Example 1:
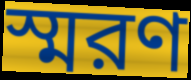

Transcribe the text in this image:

স্মরণ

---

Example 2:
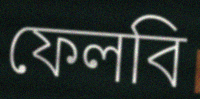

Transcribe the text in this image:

ফেলবি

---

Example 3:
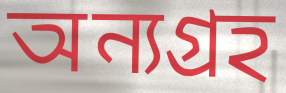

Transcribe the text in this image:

অন্যগ্রহ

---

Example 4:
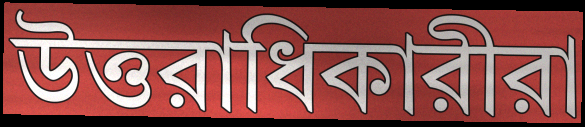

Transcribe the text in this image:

উত্তরাধিকারীরা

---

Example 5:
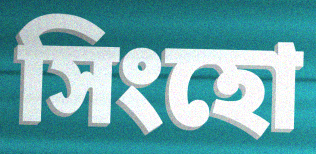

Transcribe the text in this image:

সিংহো